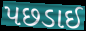
પછડાઈ